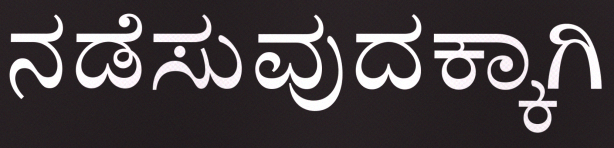
ನಡೆಸುವುದಕ್ಕಾಗಿ